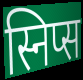
स्निप्स